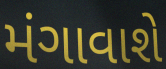
મંગાવાશે